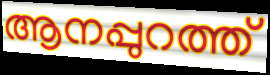
ആനപ്പുറത്ത്